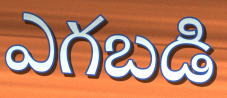
ఎగబడి